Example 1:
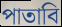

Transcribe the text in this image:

পাতাবি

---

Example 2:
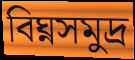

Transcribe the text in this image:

বিঘ্নসমুদ্র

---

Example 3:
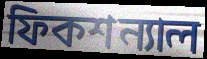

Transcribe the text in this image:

ফিকশন্যাল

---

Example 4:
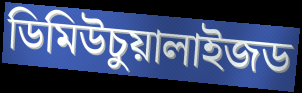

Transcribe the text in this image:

ডিমিউচুয়ালাইজড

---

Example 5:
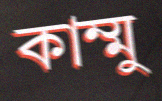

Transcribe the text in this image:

কাম্মু